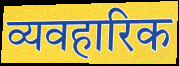
व्यवहारिक